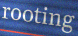
rooting